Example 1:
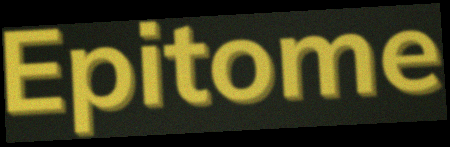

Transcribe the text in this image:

Epitome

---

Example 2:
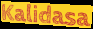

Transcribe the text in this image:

Kalidasa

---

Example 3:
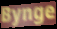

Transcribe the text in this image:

Bynge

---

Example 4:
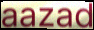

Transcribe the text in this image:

aazad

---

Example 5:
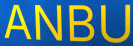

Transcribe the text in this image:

ANBU